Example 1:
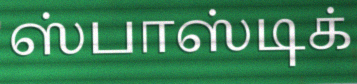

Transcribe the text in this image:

ஸ்பாஸ்டிக்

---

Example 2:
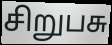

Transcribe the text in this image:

சிறுபசு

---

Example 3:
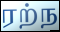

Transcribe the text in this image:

ரற்ந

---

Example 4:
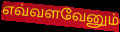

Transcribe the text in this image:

எவ்வளவேனும்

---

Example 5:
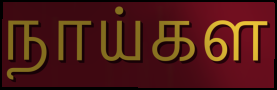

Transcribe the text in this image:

நாய்கள